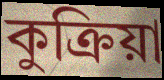
কুক্রিয়া